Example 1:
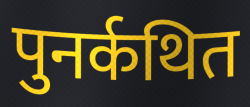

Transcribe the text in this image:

पुनर्कथित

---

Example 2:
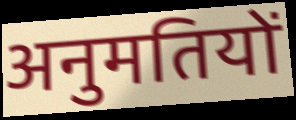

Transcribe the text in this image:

अनुमतियों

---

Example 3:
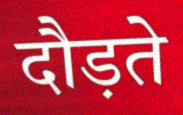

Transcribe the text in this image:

दौड़ते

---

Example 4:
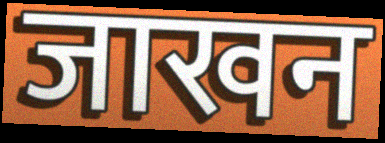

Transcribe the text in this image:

जाखन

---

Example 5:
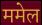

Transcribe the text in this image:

ममेल